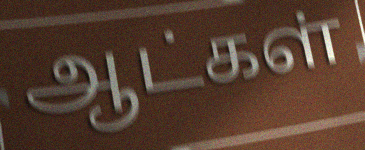
ஆட்கள்